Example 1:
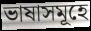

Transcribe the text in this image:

ভাষাসমূহে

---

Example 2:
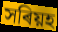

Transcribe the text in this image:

সৰিয়হ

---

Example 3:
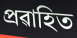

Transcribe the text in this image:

প্ৰৱাহিত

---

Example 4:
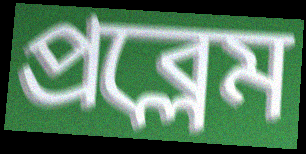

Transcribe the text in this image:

প্ৰব্লেম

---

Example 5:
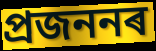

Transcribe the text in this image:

প্ৰজননৰ